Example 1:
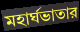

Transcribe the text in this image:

মহার্ঘভাতার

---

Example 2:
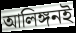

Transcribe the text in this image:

আলিঙ্গনই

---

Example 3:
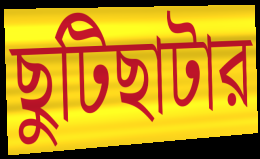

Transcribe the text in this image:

ছুটিছাটার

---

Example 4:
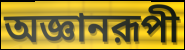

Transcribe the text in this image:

অজ্ঞানরূপী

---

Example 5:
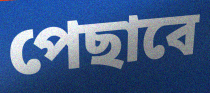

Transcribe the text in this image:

পেছাবে